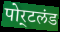
पोर्टलंड